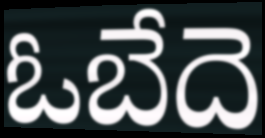
ఓబేదె